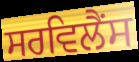
ਸਰਵਿਲੈਂਸ